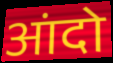
आंदो